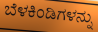
ಬೆಳಕಿಂಡಿಗಳನ್ನು